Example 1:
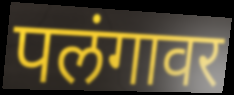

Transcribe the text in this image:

पलंगावर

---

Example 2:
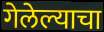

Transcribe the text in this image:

गेलेल्याचा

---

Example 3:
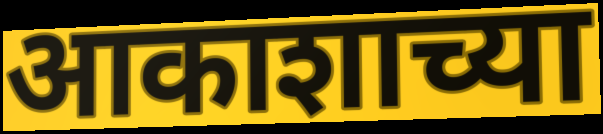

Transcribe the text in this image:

आकाशाच्या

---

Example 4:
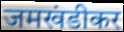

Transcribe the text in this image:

जमखंडीकर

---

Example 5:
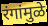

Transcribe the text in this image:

रंगांमुळे